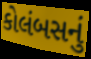
કોલંબસનું